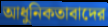
আধুনিকতাবাদের